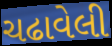
ચઢાવેલી